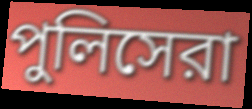
পুলিসেরা